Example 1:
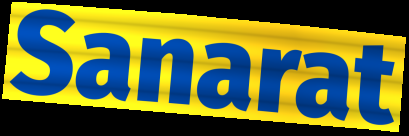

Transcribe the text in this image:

Sanarat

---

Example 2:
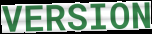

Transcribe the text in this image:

VERSION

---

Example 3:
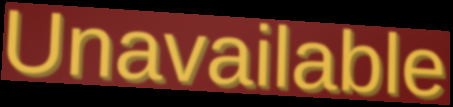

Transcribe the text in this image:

Unavailable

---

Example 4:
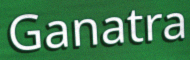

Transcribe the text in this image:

Ganatra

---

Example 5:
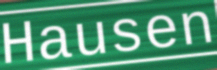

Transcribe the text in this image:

Hausen